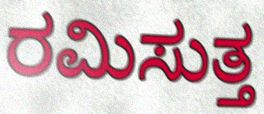
ರಮಿಸುತ್ತ